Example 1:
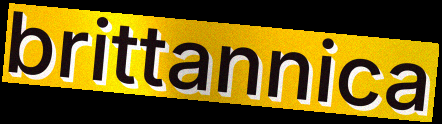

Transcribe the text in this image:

brittannica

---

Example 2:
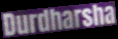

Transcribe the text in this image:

Durdharsha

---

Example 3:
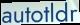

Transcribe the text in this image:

autotldr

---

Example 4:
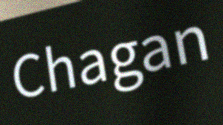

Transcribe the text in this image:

Chagan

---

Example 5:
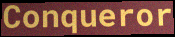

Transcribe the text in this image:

Conqueror